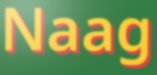
Naag